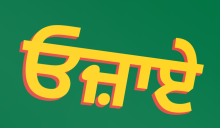
ਓਜ਼ਾਏ